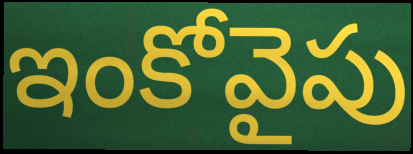
ఇంకోవైపు